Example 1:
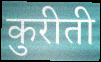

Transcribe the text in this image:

कुरीती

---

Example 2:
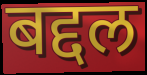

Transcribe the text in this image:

बद्दल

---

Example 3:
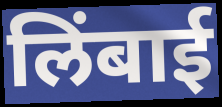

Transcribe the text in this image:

लिंबाई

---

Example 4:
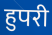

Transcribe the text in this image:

हुपरी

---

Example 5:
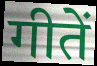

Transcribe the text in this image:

गीतें